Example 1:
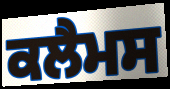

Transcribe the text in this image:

ਕਲੈਮਸ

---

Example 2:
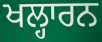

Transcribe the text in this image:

ਖਲ੍ਹਾਰਨ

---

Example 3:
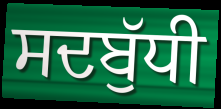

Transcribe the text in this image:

ਸਦਬੁੱਧੀ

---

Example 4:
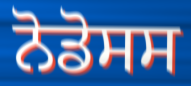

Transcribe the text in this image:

ਨੋਡੋਸਸ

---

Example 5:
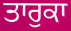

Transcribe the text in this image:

ਤਾਰੁਕਾ